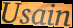
Usain